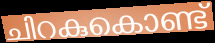
ചിറകുകൊണ്ട്